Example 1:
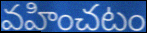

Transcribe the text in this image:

వహించటం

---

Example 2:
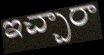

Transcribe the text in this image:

ఇచ్చారా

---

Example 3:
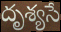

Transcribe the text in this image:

దృశ్యసే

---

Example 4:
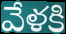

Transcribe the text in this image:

వేళకి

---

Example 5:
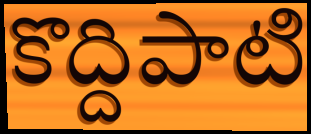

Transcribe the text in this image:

కొద్దిపాటి